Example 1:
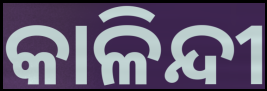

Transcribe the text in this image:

କାଳିନ୍ଦୀ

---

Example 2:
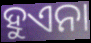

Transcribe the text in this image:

ହୁଏନା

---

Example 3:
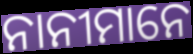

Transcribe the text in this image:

ନାନୀମାନେ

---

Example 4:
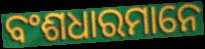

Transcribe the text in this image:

ବଂଶଧାରମାନେ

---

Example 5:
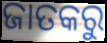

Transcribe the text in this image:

ଜାତକରୁ